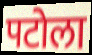
पटोला